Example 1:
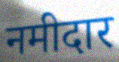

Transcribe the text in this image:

नमीदार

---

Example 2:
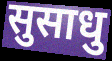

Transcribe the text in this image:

सुसाधु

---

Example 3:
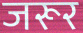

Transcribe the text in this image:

जरूर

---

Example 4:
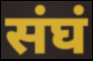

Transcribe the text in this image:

संघं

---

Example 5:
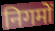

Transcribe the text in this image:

निगमों